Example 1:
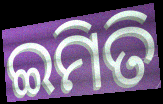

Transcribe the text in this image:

ଇମିତି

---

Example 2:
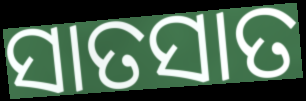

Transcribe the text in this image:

ସାତସାତ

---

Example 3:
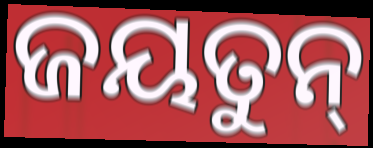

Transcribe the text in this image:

ଜୟତୁନ୍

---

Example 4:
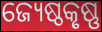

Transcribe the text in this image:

ଜ୍ୟେଷ୍ଠକୃଷ୍ଣ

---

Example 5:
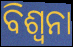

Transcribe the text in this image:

ବିଶ୍ୱନା